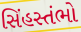
સિંહસ્તંભો